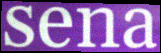
sena